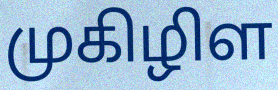
முகிழிள